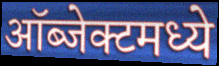
ऑब्जेक्टमध्ये